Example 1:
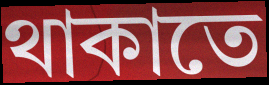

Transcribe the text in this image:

থাকাতে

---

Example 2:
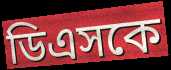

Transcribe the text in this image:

ডিএসকে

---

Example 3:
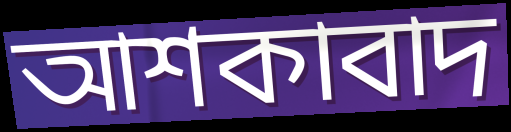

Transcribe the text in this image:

আশকাবাদ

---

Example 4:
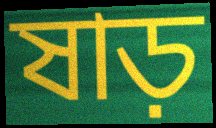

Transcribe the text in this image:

ষাড়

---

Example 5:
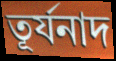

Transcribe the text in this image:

তূর্যনাদ